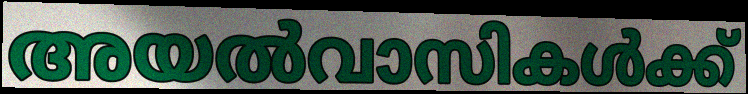
അയൽവാസികൾക്ക്